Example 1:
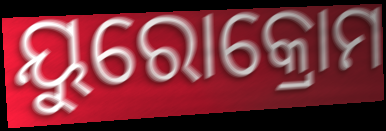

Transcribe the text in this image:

ୟୁରୋକ୍ରୋମ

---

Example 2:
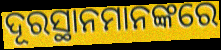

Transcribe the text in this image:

ଦୂରସ୍ଥାନମାନଙ୍କରେ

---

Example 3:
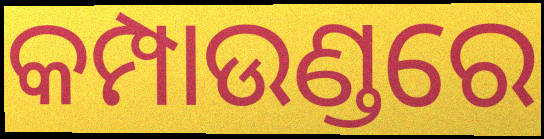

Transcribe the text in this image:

କମ୍ପାଉଣ୍ଡରେ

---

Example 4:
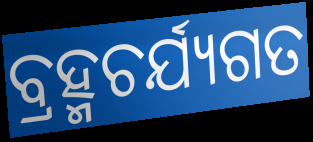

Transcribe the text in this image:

ବ୍ରହ୍ମଚର୍ଯ୍ୟଗତ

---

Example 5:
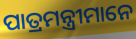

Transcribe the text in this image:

ପାତ୍ରମନ୍ତ୍ରୀମାନେ